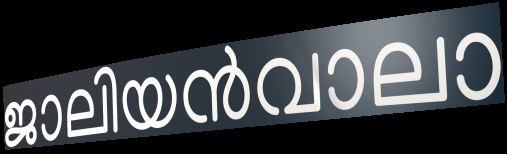
ജാലിയൻവാലാ